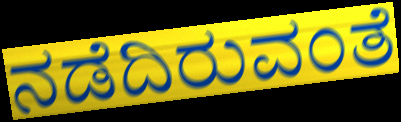
ನಡೆದಿರುವಂತೆ